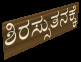
ಶಿರಸ್ಸುತನಕ್ಕೆ